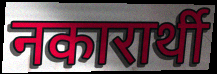
नकारार्थी